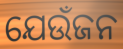
ଯେଉଁଜନ